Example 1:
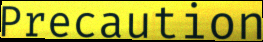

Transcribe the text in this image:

Precaution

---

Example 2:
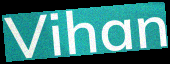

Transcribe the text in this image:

Vihan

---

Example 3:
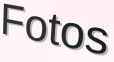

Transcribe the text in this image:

Fotos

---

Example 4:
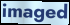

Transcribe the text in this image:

imaged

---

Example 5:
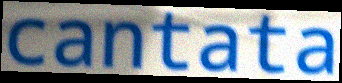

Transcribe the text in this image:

cantata